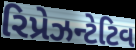
રિપ્રેઝન્ટેટિવ